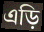
এড়ি